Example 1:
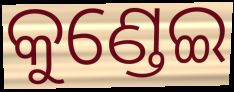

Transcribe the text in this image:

କୁଣ୍ଡେଇ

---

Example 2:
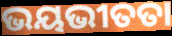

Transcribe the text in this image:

ଭୟଭୀତତା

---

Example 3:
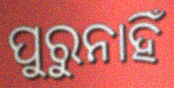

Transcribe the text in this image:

ପୁରୁନାହିଁ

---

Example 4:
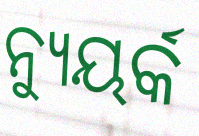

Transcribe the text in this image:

ନ୍ୟୁୟର୍କ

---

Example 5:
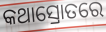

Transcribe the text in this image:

କଥାସ୍ରୋତରେ